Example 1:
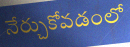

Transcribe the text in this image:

నేర్చుకోవడంలో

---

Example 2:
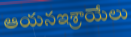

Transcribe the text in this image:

ఆయనఇశ్రాయేలు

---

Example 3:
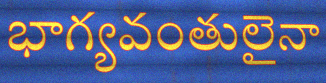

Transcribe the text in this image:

భాగ్యవంతులైనా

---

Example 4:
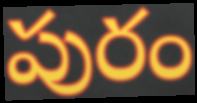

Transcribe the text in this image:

పురం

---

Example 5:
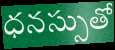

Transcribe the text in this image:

ధనస్సుతో